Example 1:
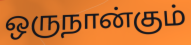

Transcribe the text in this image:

ஒருநான்கும்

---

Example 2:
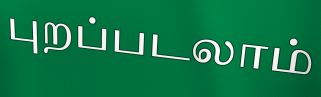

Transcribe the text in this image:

புறப்படலாம்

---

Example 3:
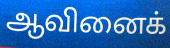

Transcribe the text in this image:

ஆவினைக்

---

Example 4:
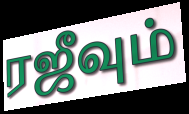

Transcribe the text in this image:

ரஜீவும்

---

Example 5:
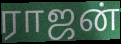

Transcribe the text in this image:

ராஜன்